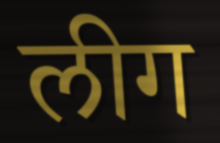
लीग